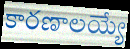
కారణాలయ్యే